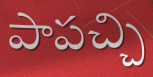
పాపచ్చి